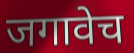
जगावेच